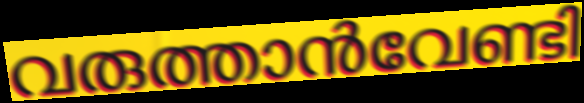
വരുത്താൻവേണ്ടി